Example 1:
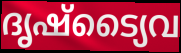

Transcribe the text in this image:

ദൃഷ്ട്യൈവ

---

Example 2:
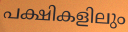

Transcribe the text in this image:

പക്ഷികളിലും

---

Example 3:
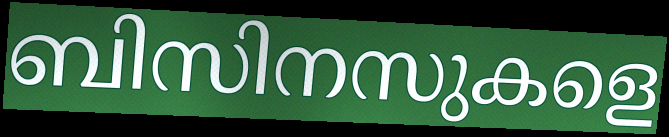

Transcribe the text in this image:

ബിസിനസുകളെ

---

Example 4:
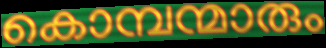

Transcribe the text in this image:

കൊമ്പന്മാരും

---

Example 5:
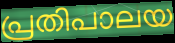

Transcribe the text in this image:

പ്രതിപാലയ